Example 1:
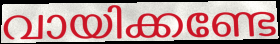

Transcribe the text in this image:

വായിക്കണ്ടേ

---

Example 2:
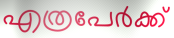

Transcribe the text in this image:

എത്രപേർക്ക്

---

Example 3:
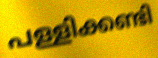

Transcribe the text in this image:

പള്ളിക്കണ്ടി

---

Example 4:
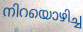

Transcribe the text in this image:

നിറയൊഴിച്ച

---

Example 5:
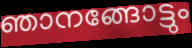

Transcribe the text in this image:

ഞാനങ്ങോട്ടും